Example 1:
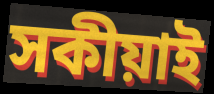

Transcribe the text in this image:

সকীয়াই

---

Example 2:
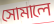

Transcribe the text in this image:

সোমালে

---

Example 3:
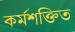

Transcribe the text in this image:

কৰ্মশক্তিত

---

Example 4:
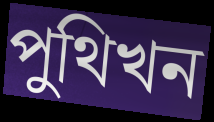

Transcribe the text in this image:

পুথিখন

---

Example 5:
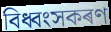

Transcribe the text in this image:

বিধ্বংসকৰণ